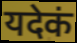
यदेकं